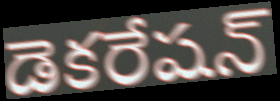
డెకరేషన్